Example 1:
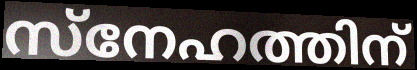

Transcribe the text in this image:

സ്നേഹത്തിന്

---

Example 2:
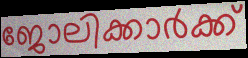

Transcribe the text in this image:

ജോലിക്കാർക്ക്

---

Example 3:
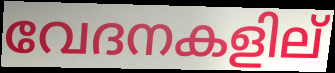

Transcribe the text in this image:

വേദനകളില്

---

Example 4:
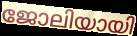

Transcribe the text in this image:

ജോലിയായി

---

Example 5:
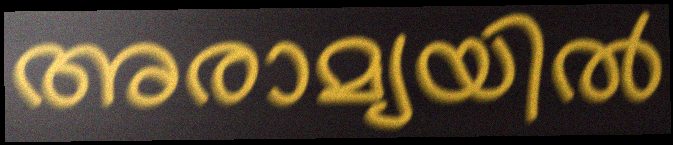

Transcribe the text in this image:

അരാമ്യയിൽ